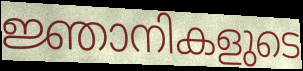
ജ്ഞാനികളുടെ